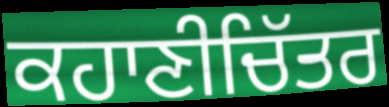
ਕਹਾਣੀਚਿੱਤਰ